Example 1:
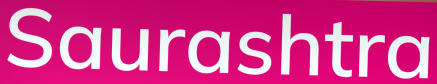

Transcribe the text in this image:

Saurashtra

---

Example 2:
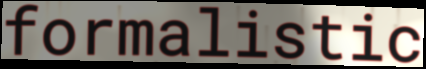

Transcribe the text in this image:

formalistic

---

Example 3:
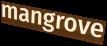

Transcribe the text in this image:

mangrove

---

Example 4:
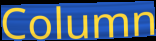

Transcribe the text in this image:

Column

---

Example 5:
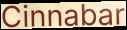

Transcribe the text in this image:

Cinnabar